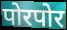
पोरपोर